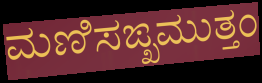
ಮಣಿಸಙ್ಖಮುತ್ತಂ